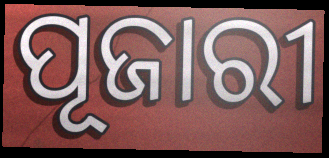
ପୂଜାରୀ